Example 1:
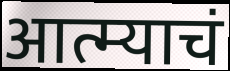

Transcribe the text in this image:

आत्म्याचं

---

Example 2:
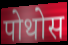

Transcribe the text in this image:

पोथोस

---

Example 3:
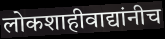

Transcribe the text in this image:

लोकशाहीवाद्यांनीच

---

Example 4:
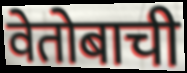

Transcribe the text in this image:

वेतोबाची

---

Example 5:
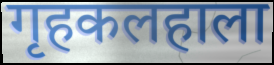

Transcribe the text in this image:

गृहकलहाला